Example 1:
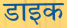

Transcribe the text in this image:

डाइक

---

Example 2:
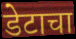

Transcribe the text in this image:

डेटाचा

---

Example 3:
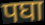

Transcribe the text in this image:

पघा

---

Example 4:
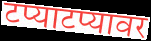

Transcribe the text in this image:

टप्याटप्यावर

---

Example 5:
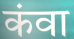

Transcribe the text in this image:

कंवा